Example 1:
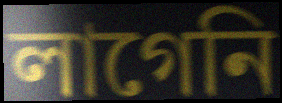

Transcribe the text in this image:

লাগেনি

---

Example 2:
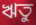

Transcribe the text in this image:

ঋতু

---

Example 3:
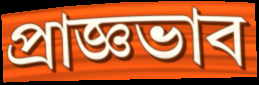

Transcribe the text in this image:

প্রাজ্ঞভাব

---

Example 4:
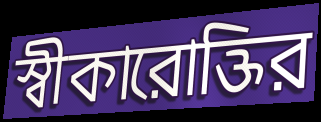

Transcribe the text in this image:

স্বীকারোক্তির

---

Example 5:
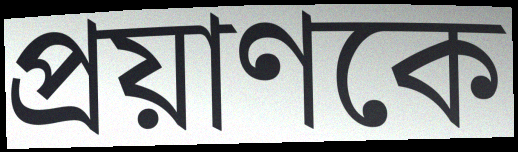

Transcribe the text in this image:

প্রয়াণকে